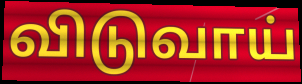
விடுவாய்